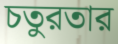
চতুরতার